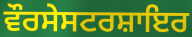
ਵੌਰਸੇਸਟਰਸ਼ਾਇਰ